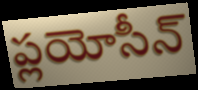
ప్లయోసీన్